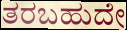
ತರಬಹುದೇ